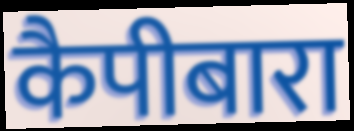
कैपीबारा